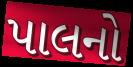
પાલનો